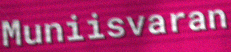
Muniisvaran